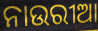
ନାଉରୀଆ